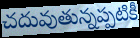
చదువుతున్నప్పటికీ